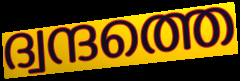
ദ്വന്ദത്തെ